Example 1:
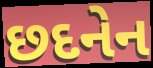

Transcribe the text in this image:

છદનેન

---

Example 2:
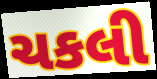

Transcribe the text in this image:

ચકલી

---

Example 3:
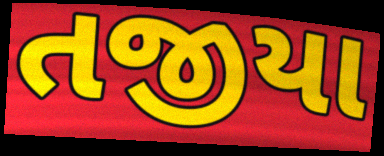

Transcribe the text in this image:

તજીયા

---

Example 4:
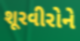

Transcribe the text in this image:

શૂરવીરોને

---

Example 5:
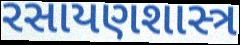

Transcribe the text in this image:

રસાયણશાસ્ત્ર